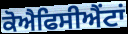
ਕੋਐਫਿਸੀਐਂਟਾਂ